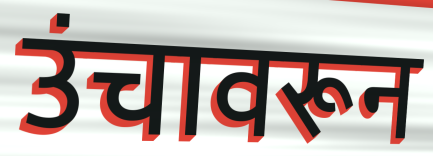
उंचावरून